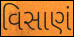
વિસાણં